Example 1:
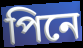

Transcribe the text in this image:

পিনে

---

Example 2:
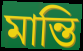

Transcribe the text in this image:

মান্তি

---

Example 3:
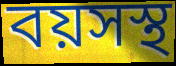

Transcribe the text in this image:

বয়সস্থ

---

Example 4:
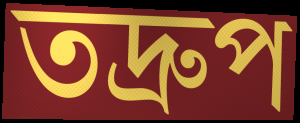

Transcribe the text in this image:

তদ্ৰুপ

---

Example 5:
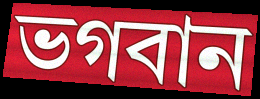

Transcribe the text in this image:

ভগবান